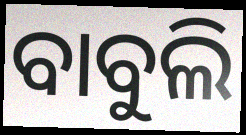
ବାବୁଲି